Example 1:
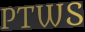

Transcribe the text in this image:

PTWS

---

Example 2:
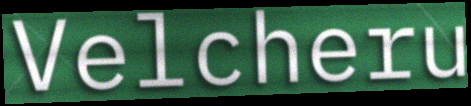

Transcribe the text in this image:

Velcheru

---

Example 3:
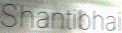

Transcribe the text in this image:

Shantibhai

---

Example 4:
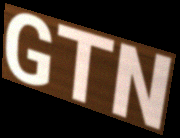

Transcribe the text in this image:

GTN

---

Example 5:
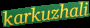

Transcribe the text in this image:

karkuzhali